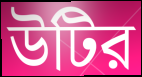
উটির